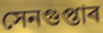
সেনগুপ্তাৰ